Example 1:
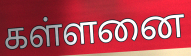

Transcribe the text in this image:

கள்ளனை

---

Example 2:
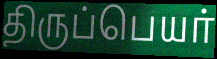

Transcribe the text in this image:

திருப்பெயர்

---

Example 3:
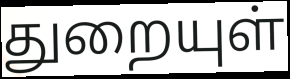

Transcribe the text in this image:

துறையுள்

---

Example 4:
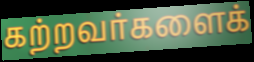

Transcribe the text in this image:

கற்றவர்களைக்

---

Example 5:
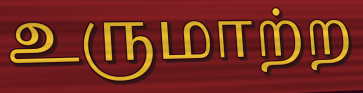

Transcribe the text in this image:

உருமாற்ற